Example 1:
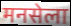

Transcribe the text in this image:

मनसेला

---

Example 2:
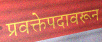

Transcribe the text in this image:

प्रवक्तेपदावरून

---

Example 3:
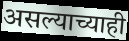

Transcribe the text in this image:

असल्याच्याही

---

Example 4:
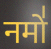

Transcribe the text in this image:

नमो॑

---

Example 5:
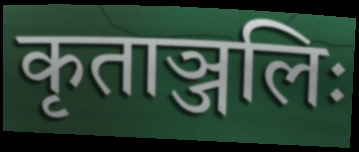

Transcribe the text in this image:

कृताञ्जलिः